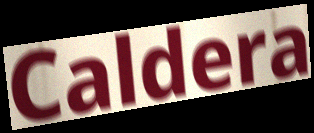
Caldera